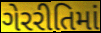
ગેરરીતિમાં